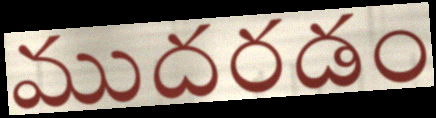
ముదరడం